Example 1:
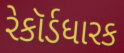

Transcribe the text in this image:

રેકૉર્ડધારક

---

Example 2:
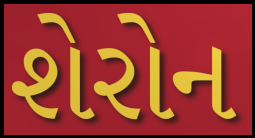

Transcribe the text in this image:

શેરોન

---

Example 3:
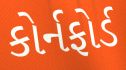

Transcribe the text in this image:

કોર્નફોર્ડ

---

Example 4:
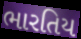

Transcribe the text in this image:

ભારતિય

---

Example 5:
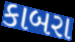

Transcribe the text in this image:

કાબરા